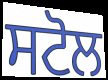
ਸਟੋਲ